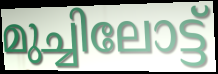
മുച്ചിലോട്ട്